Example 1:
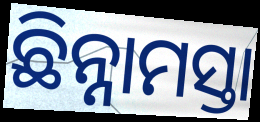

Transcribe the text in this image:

ଛିନ୍ନାମସ୍ତା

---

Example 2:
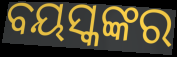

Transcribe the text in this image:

ବୟସ୍କଙ୍କର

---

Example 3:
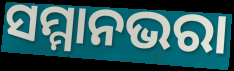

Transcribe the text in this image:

ସମ୍ମାନଭରା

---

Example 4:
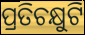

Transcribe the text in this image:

ପ୍ରତିଚକ୍ଷୁଟି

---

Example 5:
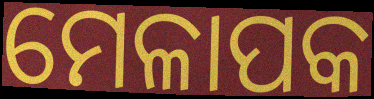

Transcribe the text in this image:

ମେଳାପକ